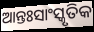
ଆନ୍ତଃସାଂସ୍କୃତିକ